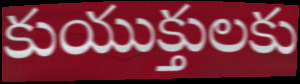
కుయుక్తులకు